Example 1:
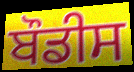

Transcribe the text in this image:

ਬੌਡੀਸ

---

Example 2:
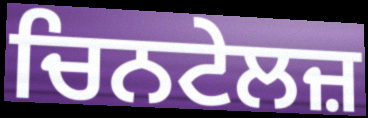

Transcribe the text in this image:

ਚਿਨਟੇਲਜ਼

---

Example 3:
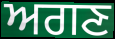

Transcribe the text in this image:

ਅਗਣ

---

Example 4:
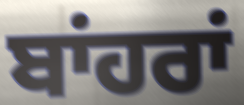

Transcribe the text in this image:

ਬਾਂਹਰਾਂ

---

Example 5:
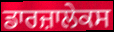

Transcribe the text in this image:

ਡਾਰਜ਼ਾਲੇਕਸ